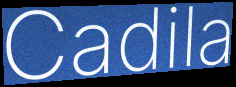
Cadila